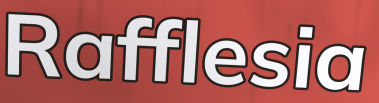
Rafflesia